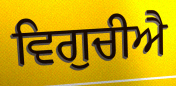
ਵਿਗੁਚੀਐ